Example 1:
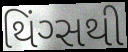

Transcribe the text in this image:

થિંગ્સથી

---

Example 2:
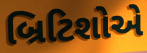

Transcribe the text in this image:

બ્રિટિશોએ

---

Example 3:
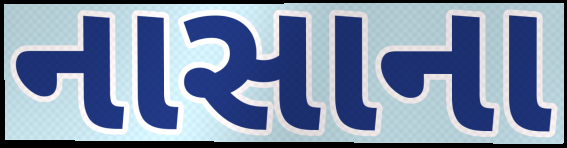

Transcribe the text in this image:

નાસાના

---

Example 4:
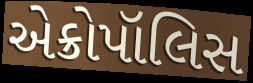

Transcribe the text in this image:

એક્રોપૉલિસ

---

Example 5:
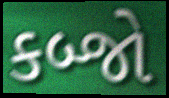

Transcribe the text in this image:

કબ્જો